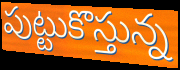
పుట్టుకొస్తున్న